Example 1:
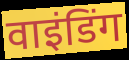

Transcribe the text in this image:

वाइंडिंग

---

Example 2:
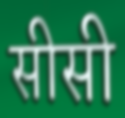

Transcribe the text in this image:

सीसी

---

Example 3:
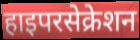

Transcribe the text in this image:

हाइपरसेक्रेशन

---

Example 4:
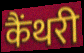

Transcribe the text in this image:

कैंथरी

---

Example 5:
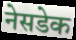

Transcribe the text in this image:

नेसडेक